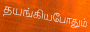
தயங்கியபோதும்